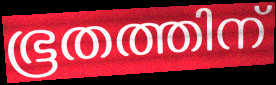
ഭൂതത്തിന്